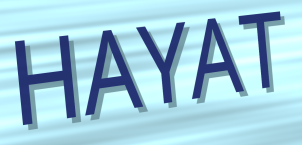
HAYAT